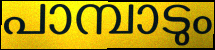
പാമ്പാടും